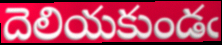
దెలియకుండఁ